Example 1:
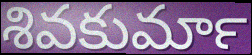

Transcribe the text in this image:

శివకుమార్‍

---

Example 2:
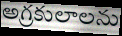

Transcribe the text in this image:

అగ్రకులాలను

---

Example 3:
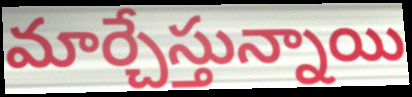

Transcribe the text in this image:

మార్చేస్తున్నాయి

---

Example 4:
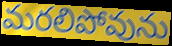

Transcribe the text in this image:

మరలిపోవును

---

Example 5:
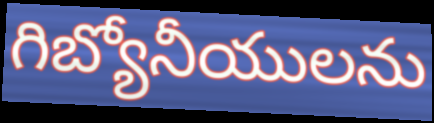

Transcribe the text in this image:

గిబ్యోనీయులను